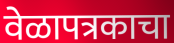
वेळापत्रकाचा